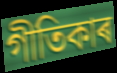
গীতিকাৰ